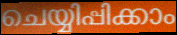
ചെയ്യിപ്പിക്കാം